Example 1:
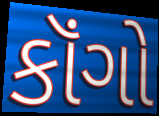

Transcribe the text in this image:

કૉંગો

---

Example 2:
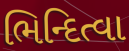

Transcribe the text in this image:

ભિન્દિત્વા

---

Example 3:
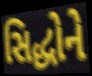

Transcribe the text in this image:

સિદ્ધોને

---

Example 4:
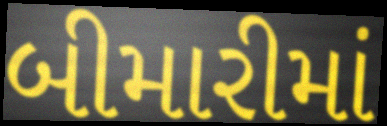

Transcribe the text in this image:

બીમારીમાં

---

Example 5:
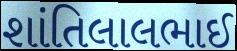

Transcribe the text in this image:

શાંતિલાલભાઈ